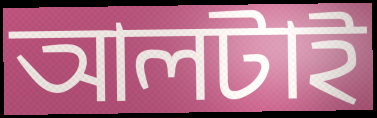
আলটাই